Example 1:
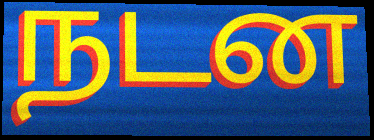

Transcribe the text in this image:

நடன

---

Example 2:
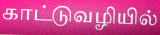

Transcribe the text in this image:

காட்டுவழியில்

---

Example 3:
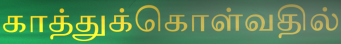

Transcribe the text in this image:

காத்துக்கொள்வதில்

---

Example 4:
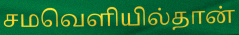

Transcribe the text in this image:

சமவெளியில்தான்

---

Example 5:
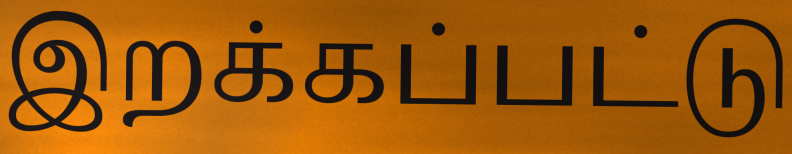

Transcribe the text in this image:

இறக்கப்பட்டு